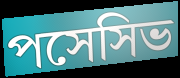
পসেসিভ